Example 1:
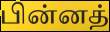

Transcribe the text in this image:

பின்னத்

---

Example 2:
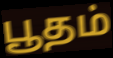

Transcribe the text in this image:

பூதம்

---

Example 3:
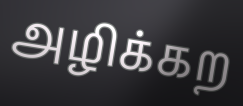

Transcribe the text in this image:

அழிக்கற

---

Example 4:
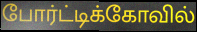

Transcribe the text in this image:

போர்ட்டிக்கோவில்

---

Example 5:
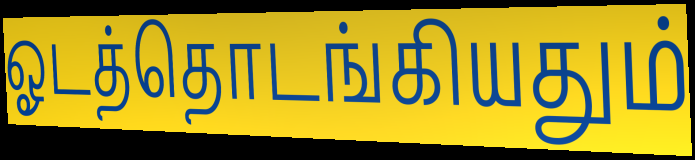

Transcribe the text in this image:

ஓடத்தொடங்கியதும்